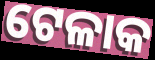
ଟେଳାକ